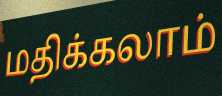
மதிக்கலாம்